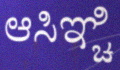
ಆಸಿಞ್ಚಿ